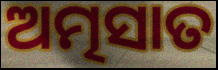
ଅତ୍ମସାତ